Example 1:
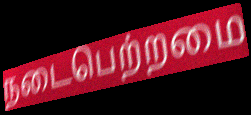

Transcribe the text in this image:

நடைபெற்றமை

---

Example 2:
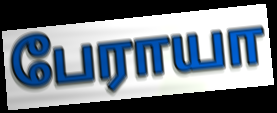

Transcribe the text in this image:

பேராயா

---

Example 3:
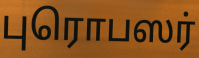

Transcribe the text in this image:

புரொபஸர்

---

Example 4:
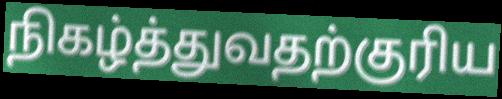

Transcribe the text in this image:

நிகழ்த்துவதற்குரிய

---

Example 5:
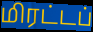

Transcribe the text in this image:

மிரட்டப்